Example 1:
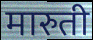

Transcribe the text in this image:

मारुती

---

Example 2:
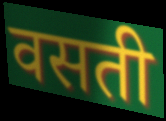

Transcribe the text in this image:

वसती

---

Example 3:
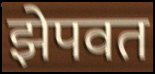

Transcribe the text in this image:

झेपवत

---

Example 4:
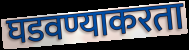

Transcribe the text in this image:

घडवण्याकरता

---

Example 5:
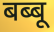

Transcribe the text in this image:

बब्बू